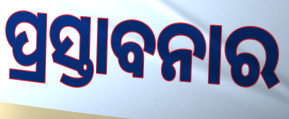
ପ୍ରସ୍ତାବନାର